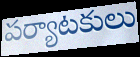
పర్యాటకులు